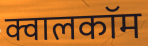
क्वालकॉम